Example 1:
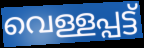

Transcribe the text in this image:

വെള്ളപ്പട്ട്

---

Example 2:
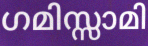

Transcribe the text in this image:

ഗമിസ്സാമി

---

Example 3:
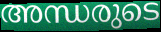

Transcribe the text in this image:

അന്ധരുടെ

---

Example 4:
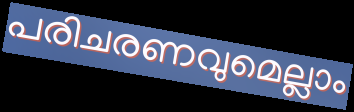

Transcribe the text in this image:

പരിചരണവുമെല്ലാം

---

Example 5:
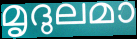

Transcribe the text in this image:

മൃദുലമാ